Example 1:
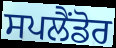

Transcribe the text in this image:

ਸਪਲੈਂਡੋਰ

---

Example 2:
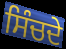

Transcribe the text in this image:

ਸਿੰਚਦੇ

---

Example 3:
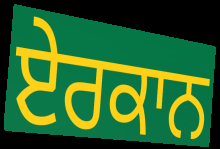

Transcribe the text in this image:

ਏਰਕਾਨ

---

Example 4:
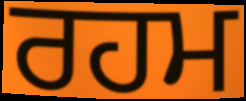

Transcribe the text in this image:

ਰਹਮ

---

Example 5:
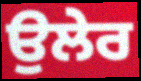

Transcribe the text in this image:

ਉਲੇਰ